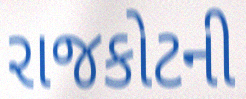
રાજકોટની